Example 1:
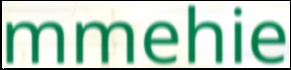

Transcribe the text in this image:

mmehie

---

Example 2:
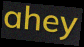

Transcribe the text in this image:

ahey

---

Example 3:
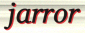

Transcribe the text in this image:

jarror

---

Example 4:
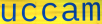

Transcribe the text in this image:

uccam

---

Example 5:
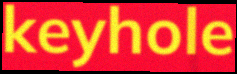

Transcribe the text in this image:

keyhole